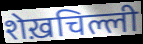
शेख़चिल्ली